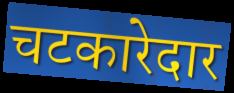
चटकारेदार